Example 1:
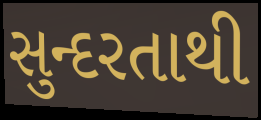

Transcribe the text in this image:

સુન્દરતાથી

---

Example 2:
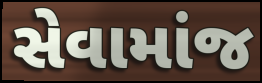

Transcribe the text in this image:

સેવામાંજ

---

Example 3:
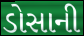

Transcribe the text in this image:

ડોસાની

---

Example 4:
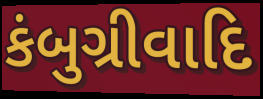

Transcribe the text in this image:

કંબુગ્રીવાદિ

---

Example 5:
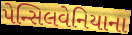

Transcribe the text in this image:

પેન્સિલવેનિયાના